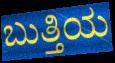
ಬುತ್ತಿಯ